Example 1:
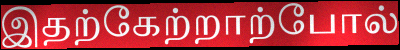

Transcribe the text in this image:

இதற்கேற்றாற்போல்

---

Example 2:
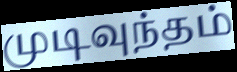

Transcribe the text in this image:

முடிவுந்தம்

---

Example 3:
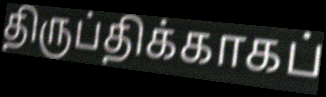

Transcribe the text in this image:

திருப்திக்காகப்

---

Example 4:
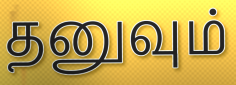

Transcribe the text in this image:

தனுவும்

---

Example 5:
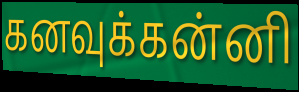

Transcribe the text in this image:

கனவுக்கன்னி